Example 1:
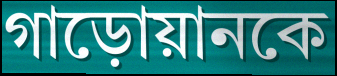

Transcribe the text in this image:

গাড়োয়ানকে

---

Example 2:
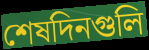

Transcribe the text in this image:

শেষদিনগুলি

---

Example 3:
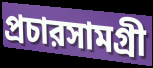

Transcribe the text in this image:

প্রচারসামগ্রী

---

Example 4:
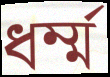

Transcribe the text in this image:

ধর্ম্ম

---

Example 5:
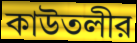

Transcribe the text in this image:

কাউতলীর